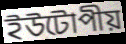
ইউটোপীয়